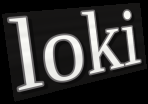
loki